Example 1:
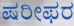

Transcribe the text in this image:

ಷರೀಫರ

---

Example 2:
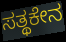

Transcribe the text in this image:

ಸತ್ಥಕೇನ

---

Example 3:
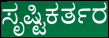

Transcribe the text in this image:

ಸೃಷ್ಟಿಕರ್ತರ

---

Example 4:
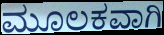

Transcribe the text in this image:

ಮೂಲಕವಾಗಿ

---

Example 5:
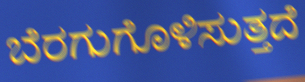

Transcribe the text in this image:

ಬೆರಗುಗೊಳಿಸುತ್ತದೆ